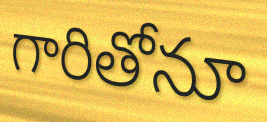
గారితోనూ